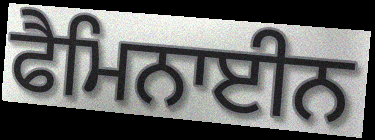
ਫੈਮਿਨਾਈਨ